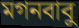
মগনবাবু